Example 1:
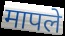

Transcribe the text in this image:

मापले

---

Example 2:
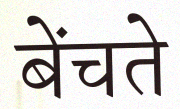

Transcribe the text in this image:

बेंचते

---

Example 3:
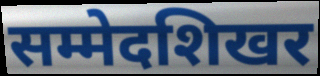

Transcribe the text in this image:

सम्मेदशिखर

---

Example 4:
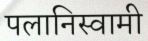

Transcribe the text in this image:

पलानिस्वामी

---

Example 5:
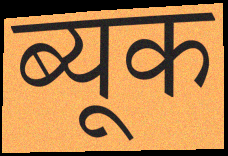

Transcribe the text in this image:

ब्यूक